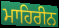
ਮਾਹਿਰੀਨ